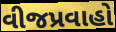
વીજપ્રવાહો